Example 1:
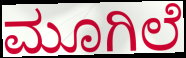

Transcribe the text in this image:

ಮೂಗಿಲೆ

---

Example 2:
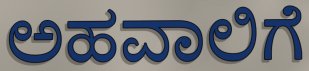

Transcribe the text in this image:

ಅಹವಾಲಿಗೆ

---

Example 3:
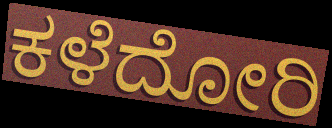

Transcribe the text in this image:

ಕಳೆದೋರಿ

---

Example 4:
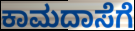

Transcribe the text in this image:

ಕಾಮದಾಸೆಗೆ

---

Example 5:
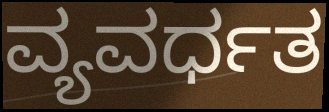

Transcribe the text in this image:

ವ್ಯವರ್ಧತ